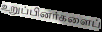
உறுப்பினர்களைப்